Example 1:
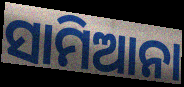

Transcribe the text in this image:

ସାମିଆନା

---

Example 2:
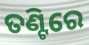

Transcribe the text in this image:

ତଣ୍ଟିରେ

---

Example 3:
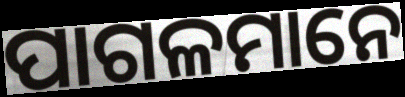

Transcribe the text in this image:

ପାଗଳମାନେ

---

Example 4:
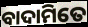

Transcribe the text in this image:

ବାଦାମିତେ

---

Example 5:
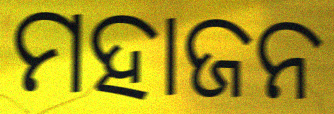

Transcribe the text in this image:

ମହାଜନ